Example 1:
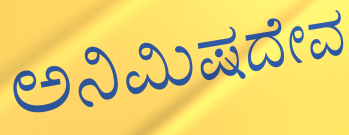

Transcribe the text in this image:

ಅನಿಮಿಷದೇವ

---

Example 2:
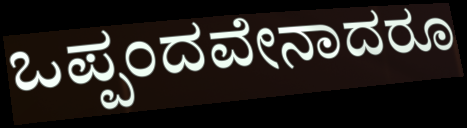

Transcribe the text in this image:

ಒಪ್ಪಂದವೇನಾದರೂ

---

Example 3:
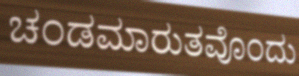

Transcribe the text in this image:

ಚಂಡಮಾರುತವೊಂದು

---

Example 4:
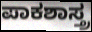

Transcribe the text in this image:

ಪಾಕಶಾಸ್ತ್ರ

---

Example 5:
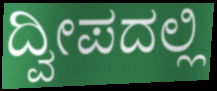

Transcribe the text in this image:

ದ್ವೀಪದಲ್ಲಿ